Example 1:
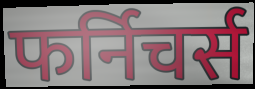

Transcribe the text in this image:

फर्निचर्स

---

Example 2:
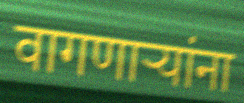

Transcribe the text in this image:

वागणार्‍यांना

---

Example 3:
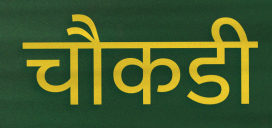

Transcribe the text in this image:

चौकडी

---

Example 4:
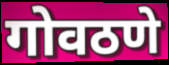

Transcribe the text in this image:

गोवठणे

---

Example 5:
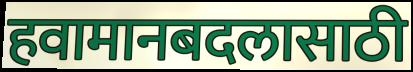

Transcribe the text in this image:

हवामानबदलासाठी